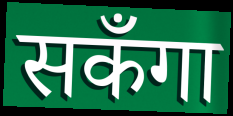
सकँगा